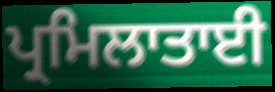
ਪ੍ਰਮਿਲਾਤਾਈ